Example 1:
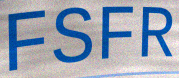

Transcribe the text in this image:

FSFR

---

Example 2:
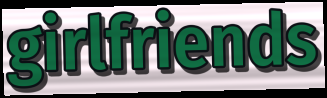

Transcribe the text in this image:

girlfriends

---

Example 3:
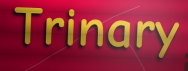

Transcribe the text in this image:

Trinary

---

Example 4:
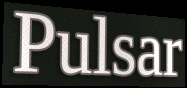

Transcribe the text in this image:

Pulsar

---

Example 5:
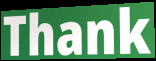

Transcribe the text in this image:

Thank